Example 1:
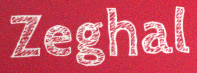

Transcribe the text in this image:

Zeghal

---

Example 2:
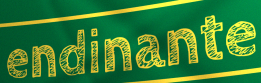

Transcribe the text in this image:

endinante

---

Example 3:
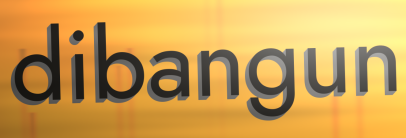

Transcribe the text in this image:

dibangun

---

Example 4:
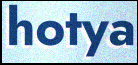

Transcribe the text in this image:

hotya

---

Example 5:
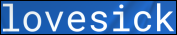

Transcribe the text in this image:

lovesick